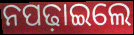
ନପଢ଼ାଇଲେ